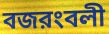
বজরংবলী